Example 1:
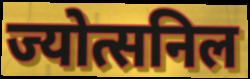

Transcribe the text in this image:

ज्योत्सनिल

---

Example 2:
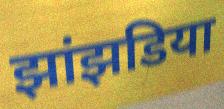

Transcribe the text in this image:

झांझडिया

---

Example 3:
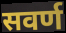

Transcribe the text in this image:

सवर्ण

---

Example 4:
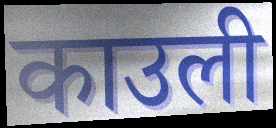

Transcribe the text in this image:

काउली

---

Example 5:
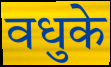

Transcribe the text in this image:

वधुके